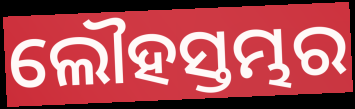
ଲୌହସ୍ତମ୍ଭର